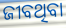
ଜୀବଥିବା